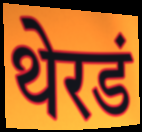
थेरडं